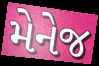
મેનેજ